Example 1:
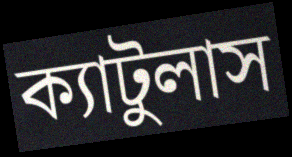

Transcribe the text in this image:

ক্যাটুলাস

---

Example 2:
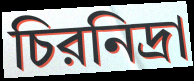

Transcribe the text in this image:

চিরনিদ্রা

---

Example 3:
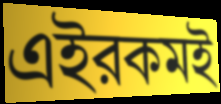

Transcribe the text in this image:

এইরকমই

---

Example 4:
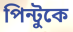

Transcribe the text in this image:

পিন্টুকে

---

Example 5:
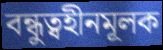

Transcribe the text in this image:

বন্ধুত্বহীনমূলক